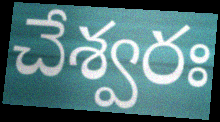
చేశ్వరః